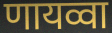
णायव्वा